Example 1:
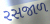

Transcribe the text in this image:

રસજાળ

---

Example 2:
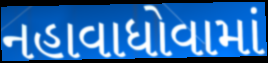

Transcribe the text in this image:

નહાવાધોવામાં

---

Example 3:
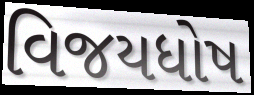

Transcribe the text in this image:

વિજયધોષ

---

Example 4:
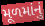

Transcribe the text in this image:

મૂળમાંનું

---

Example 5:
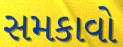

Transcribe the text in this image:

સમકાવો